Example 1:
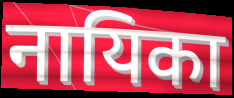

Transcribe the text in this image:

नायिका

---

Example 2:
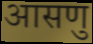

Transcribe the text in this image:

आसणु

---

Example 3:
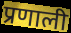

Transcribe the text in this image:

प्रणाली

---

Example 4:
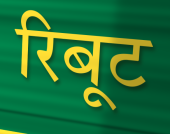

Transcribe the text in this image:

रिबूट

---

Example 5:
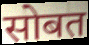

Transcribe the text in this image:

सोबत